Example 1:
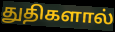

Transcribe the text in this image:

துதிகளால்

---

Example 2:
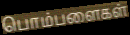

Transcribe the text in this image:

பொம்பளைகள்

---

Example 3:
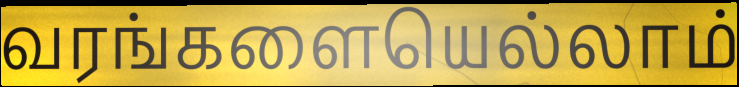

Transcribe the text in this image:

வரங்களையெல்லாம்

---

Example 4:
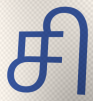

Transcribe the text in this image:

சி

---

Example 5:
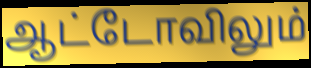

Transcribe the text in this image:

ஆட்டோவிலும்